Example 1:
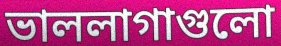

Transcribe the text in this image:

ভাললাগাগুলো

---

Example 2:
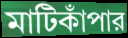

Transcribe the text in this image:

মাটিকাঁপার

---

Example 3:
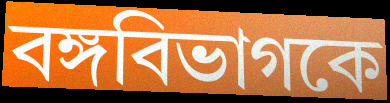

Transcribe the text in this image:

বঙ্গবিভাগকে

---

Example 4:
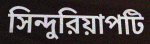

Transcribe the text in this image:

সিন্দুরিয়াপটি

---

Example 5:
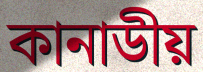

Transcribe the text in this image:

কানাডীয়